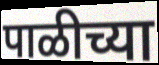
पाळीच्या